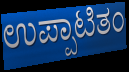
ಉಪ್ಪಾಟಿತಂ